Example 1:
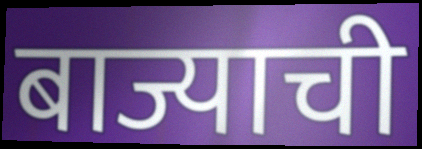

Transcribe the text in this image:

बाज्याची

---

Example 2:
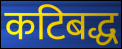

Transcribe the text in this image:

कटिबद्ध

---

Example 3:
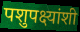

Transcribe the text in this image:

पशुपक्ष्यांशी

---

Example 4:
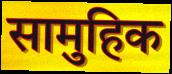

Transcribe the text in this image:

सामुहिक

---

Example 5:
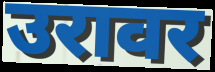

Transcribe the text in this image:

उरावर